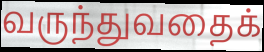
வருந்துவதைக்